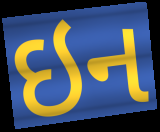
ઇન